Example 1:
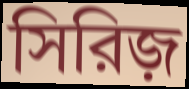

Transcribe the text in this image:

সিরিজ়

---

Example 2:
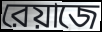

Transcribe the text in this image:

রেয়াজে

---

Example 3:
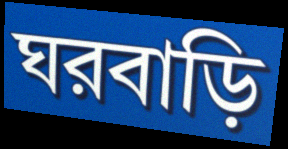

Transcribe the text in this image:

ঘরবাড়ি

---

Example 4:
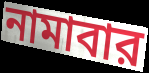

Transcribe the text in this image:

নামাবার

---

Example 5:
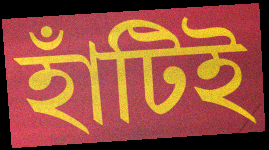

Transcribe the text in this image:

হাঁটিই